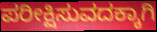
ಪರೀಕ್ಷಿಸುವದಕ್ಕಾಗಿ